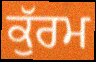
ਕੁੱਰਮ